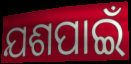
ଯଶପାଇଁ